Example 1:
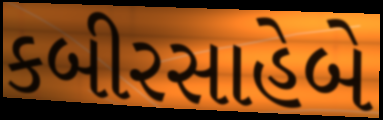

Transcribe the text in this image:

કબીરસાહેબે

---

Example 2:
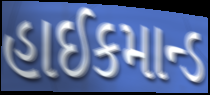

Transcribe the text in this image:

હાઈકમાન્ડ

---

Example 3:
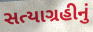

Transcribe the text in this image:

સત્યાગ્રહીનું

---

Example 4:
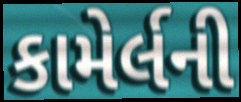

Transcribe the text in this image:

કામેર્લની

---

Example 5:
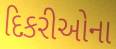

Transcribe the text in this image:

દિકરીઓના